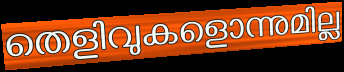
തെളിവുകളൊന്നുമില്ല